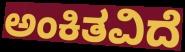
ಅಂಕಿತವಿದೆ